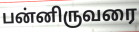
பன்னிருவரை